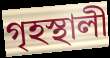
গৃহস্থালী